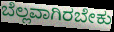
ಬೆಲ್ಲವಾಗಿರಬೇಕು